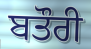
ਬਤੌਰੀ